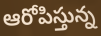
ఆరోపిస్తున్న